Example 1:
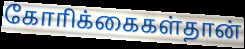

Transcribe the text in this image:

கோரிக்கைகள்தான்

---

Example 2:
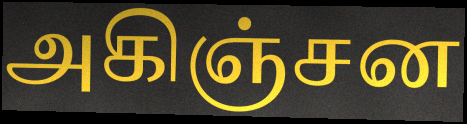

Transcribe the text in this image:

அகிஞ்சன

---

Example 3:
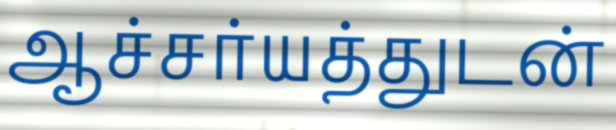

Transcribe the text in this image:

ஆச்சர்யத்துடன்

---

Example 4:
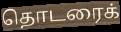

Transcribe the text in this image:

தொடரைக்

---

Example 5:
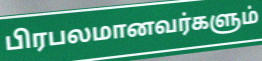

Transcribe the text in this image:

பிரபலமானவர்களும்